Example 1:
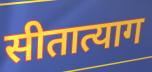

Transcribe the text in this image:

सीतात्याग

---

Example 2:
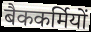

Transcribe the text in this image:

बैककर्मियों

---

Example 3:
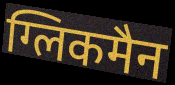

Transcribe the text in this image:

ग्लिकमैन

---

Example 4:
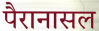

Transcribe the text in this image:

पैरानासल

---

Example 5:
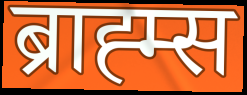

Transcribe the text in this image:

ब्राह्म्स